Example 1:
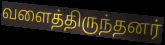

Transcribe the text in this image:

வளைத்திருந்தனர்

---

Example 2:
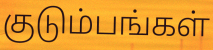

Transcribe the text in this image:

குடும்பங்கள்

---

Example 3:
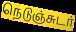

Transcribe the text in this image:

நெடுஞ்சுடர்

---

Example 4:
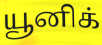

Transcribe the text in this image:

யூனிக்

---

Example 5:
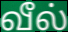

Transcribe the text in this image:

வீல்